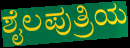
ಶೈಲಪುತ್ರಿಯ